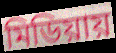
মিডিয়ায়